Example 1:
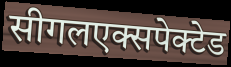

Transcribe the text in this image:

सीगलएक्सपेक्टेड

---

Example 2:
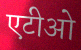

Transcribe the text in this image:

एटीओ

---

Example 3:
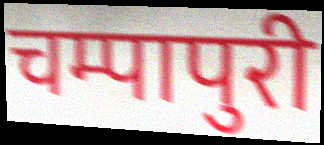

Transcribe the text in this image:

चम्पापुरी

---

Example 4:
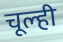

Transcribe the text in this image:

चूल्ही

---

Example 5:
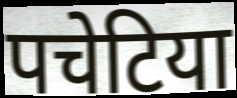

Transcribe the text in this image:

पचेटिया